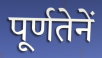
पूर्णतेनें